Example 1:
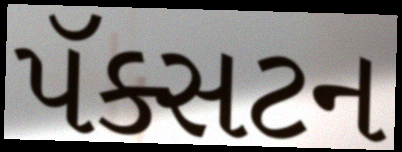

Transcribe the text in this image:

પૅક્સટન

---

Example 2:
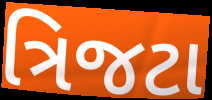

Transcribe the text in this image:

ત્રિજટા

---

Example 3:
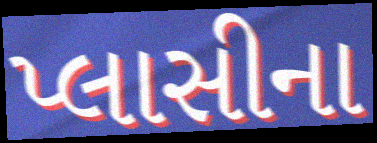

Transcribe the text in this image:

પ્લાસીના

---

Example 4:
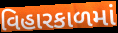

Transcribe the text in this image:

વિહારકાળમાં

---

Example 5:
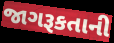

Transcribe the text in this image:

જાગરૂકતાની